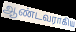
ஆண்டவராகிய